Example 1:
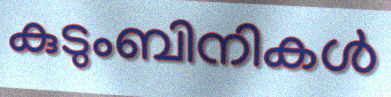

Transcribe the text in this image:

കുടുംബിനികൾ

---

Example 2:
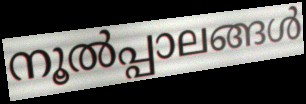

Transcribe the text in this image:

നൂൽപ്പാലങ്ങൾ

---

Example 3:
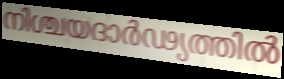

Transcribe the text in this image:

നിശ്ചയദാർഢ്യത്തിൽ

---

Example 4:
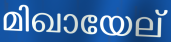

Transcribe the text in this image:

മിഖായേല്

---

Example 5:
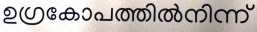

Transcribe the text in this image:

ഉഗ്രകോപത്തിൽനിന്ന്